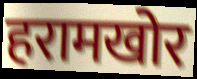
हरामखोर